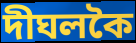
দীঘলকৈ